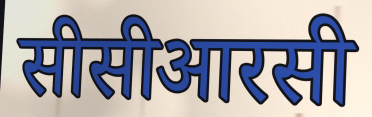
सीसीआरसी